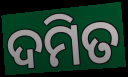
ଦମିତ